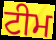
ਟੀਮ